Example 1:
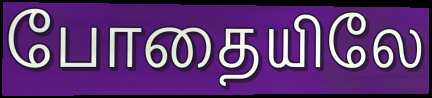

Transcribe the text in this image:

போதையிலே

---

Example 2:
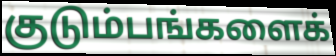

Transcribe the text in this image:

குடும்பங்களைக்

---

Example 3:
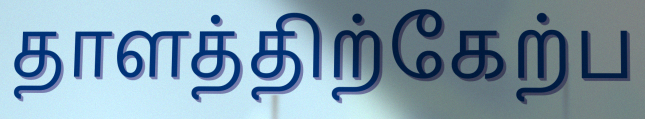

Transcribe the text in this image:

தாளத்திற்கேற்ப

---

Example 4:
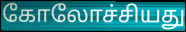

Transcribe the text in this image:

கோலோச்சியது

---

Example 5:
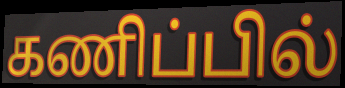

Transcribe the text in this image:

கணிப்பில்